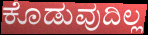
ಕೊಡುವುದಿಲ್ಲ